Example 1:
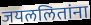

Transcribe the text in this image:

जयललितांना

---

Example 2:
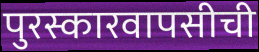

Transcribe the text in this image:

पुरस्कारवापसीची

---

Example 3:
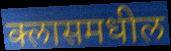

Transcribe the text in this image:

क्लासमधील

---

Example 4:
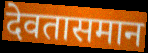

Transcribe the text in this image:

देवतासमान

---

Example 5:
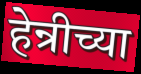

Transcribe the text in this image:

हेन्रीच्या